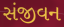
સંજીવન